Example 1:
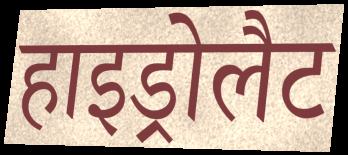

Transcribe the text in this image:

हाइड्रोलैट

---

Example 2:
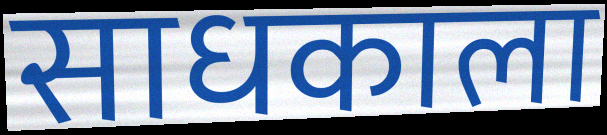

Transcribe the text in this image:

साधकाला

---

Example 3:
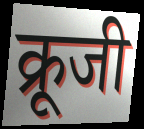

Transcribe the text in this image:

क्रूजी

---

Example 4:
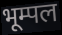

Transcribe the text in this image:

भूम्पल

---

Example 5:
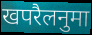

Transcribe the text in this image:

खपरैलनुमा